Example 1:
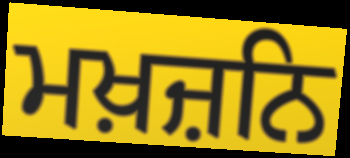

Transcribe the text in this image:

ਮਖ਼ਜ਼ਨਿ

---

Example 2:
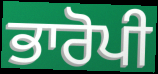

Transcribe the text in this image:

ਭਾਰੋਪੀ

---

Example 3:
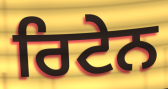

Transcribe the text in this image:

ਰਿਟੇਨ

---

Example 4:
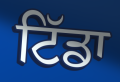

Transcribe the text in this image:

ਟਿੱਡਾ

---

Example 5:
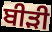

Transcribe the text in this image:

ਬੀਡ਼ੀ